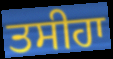
ਤਸੀਹਾ